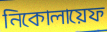
নিকোলায়েফ